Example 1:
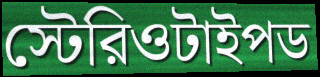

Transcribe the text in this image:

স্টেরিওটাইপড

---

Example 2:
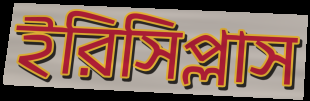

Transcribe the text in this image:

ইরিসিপ্লাস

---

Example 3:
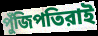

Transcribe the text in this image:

পুঁজিপতিরাই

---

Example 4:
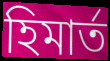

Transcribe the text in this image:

হিমার্ত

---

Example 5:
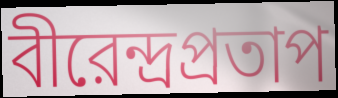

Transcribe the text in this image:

বীরেন্দ্রপ্রতাপ